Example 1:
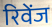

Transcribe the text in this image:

रिवेंज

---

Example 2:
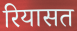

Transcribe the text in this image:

रियासत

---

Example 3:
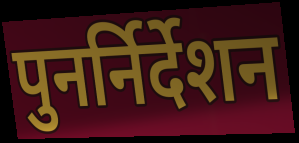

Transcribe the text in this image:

पुनर्निर्देशन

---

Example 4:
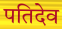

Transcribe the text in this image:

पतिदेव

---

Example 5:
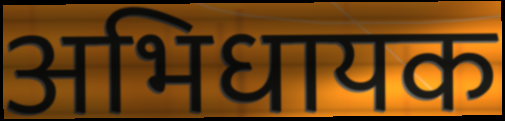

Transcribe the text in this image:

अभिधायक